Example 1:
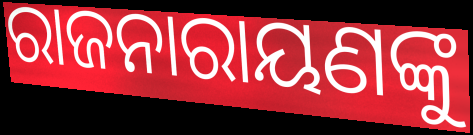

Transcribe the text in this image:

ରାଜନାରାୟଣଙ୍କୁ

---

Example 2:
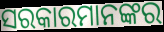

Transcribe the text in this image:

ସରକାରମାନଙ୍କର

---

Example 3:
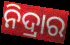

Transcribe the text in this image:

ନିଦ୍ରାର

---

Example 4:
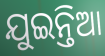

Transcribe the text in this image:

ଯୁଇନ୍ତିଆ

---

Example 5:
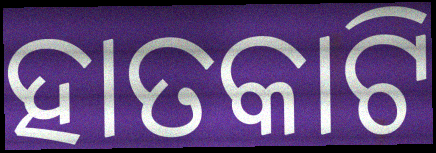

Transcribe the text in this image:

ହାତକାଟି